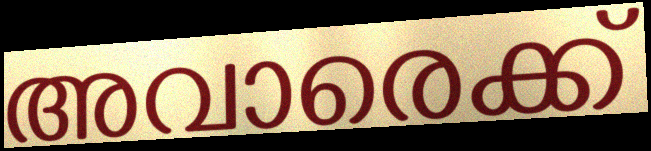
അവാരെക്ക്